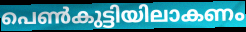
പെൺകുട്ടിയിലാകണം